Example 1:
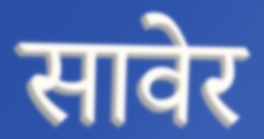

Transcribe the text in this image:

सावेर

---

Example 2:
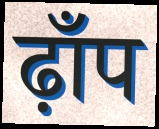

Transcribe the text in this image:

ढ़ाँप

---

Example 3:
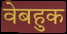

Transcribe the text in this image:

वेबहुक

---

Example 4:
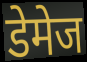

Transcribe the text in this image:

डेमेज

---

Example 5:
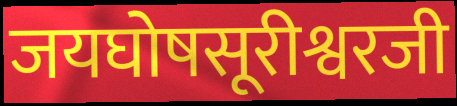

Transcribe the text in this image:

जयघोषसूरीश्वरजी